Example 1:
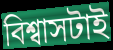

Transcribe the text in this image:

বিশ্বাসটাই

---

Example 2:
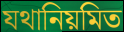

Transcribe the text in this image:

যথানিয়মিত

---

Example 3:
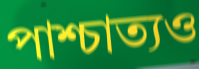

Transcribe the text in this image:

পাশ্চাত্যও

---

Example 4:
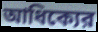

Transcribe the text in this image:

আধিক্যের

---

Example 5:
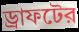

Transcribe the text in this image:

ড্রাফটের